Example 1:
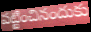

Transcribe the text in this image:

పట్టించినందుకు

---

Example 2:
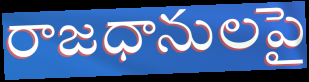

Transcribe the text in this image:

రాజధానులపై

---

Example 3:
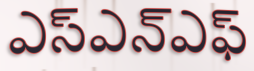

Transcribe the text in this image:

ఎస్ఎన్ఎఫ్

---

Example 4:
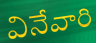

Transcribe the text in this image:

వినేవారి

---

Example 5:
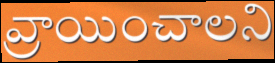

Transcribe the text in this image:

వ్రాయించాలని